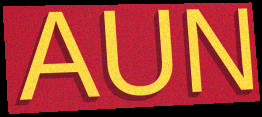
AUN